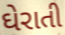
ઘેરાતી